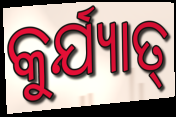
କୁର୍ଯ୍ୟାତ୍